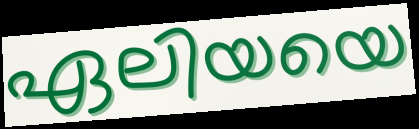
ഏലിയയെ